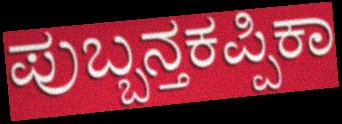
ಪುಬ್ಬನ್ತಕಪ್ಪಿಕಾ